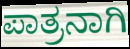
ಪಾತ್ರನಾಗಿ